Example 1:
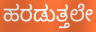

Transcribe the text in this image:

ಹರಡುತ್ತಲೇ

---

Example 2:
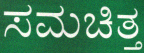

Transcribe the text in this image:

ಸಮಚಿತ್ತ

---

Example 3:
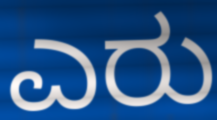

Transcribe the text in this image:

ಎರು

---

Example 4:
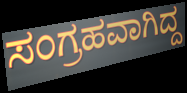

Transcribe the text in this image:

ಸಂಗ್ರಹವಾಗಿದ್ದ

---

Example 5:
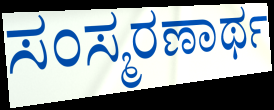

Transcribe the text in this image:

ಸಂಸ್ಮರಣಾರ್ಥ